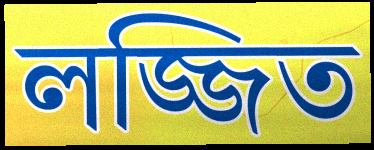
লজ্জিত